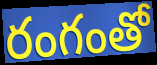
రంగంతో